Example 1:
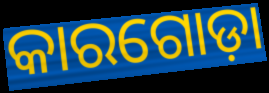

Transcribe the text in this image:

କାରଗୋଡ଼ା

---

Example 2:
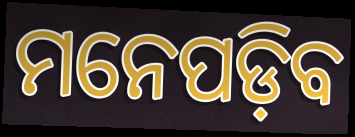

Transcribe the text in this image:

ମନେପଡ଼ିବ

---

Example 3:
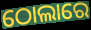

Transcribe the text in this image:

ଠୋଲାରେ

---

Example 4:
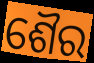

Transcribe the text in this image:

ଶୈର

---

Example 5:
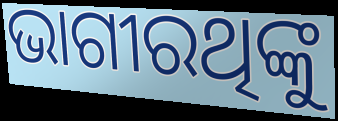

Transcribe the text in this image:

ଭାଗୀରଥିଙ୍କୁ